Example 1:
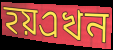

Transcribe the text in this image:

হয়এখন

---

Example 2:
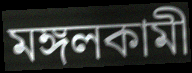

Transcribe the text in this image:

মঙ্গলকামী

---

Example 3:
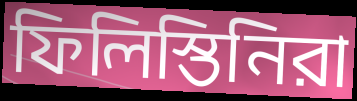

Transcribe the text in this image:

ফিলিস্তিনিরা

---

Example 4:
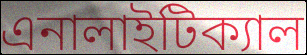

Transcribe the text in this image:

এনালাইটিক্যাল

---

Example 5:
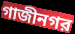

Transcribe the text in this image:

গাজীনগর